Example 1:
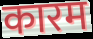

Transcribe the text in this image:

कारम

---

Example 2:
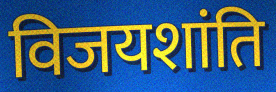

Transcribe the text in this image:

विजयशांति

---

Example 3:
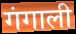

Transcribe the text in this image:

गंगाली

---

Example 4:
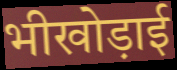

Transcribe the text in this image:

भीखोड़ाई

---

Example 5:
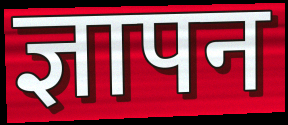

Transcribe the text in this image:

ज्ञापन